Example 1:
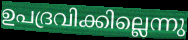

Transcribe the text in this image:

ഉപദ്രവിക്കില്ലെന്നു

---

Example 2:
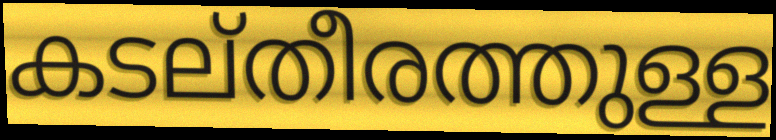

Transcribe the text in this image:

കടല്തീരത്തുള്ള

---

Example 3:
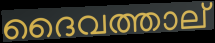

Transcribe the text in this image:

ദൈവത്താല്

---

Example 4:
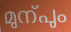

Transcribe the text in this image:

മുന്പും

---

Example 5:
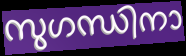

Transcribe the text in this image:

സുഗന്ധിനാ